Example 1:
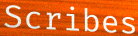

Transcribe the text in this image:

Scribes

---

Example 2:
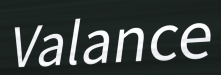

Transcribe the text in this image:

Valance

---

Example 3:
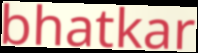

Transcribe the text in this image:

bhatkar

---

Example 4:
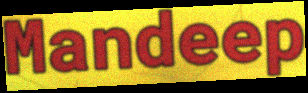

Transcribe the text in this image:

Mandeep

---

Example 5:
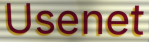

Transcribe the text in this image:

Usenet